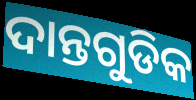
ଦାନ୍ତଗୁଡିକ